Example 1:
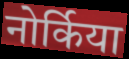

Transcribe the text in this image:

नोर्किया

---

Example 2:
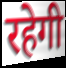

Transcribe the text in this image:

रहेगी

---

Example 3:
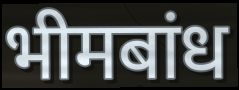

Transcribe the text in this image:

भीमबांध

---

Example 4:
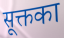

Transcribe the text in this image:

सूक्तका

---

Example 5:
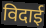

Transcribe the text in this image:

विदाई